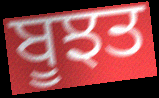
ਬੂਝਤ